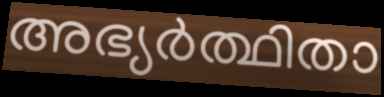
അഭ്യർത്ഥിതാ